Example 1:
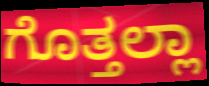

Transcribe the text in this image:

ಗೊತ್ತಲ್ಲಾ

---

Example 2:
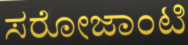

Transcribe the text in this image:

ಸರೋಜಾಂಟಿ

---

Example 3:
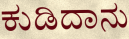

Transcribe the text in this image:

ಕುಡಿದಾನು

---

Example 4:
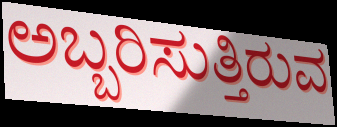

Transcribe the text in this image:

ಅಬ್ಬರಿಸುತ್ತಿರುವ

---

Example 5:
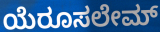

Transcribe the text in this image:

ಯೆರೂಸಲೇಮ್